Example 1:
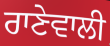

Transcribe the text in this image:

ਰਾਣੇਵਾਲੀ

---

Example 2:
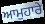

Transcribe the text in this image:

ਆਮੁਹਾਰੇ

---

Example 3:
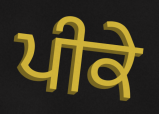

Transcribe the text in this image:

ਪੀਕੇ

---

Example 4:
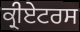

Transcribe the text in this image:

ਕ੍ਰੀਏਟਰਸ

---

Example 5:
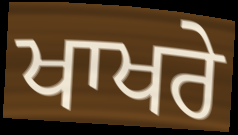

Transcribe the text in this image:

ਖਾਖਰੇ